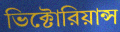
ভিক্টোরিয়ান্স